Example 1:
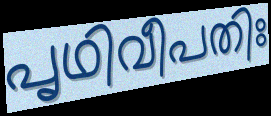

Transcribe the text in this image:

പൃഥിവീപതിഃ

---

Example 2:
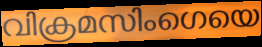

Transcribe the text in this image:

വിക്രമസിംഗെയെ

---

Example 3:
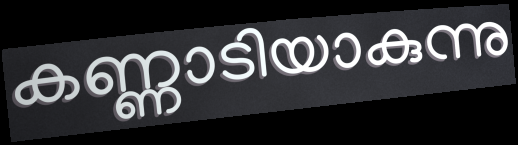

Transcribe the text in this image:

കണ്ണാടിയാകുന്നു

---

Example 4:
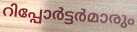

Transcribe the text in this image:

റിപ്പോർട്ടർമാരും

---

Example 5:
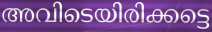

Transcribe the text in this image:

അവിടെയിരിക്കട്ടെ